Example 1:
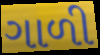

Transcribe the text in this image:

ગાળી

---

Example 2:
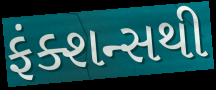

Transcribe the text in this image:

ફંક્શન્સથી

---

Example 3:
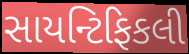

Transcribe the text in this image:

સાયન્ટિફિકલી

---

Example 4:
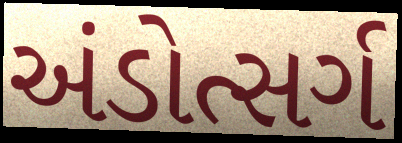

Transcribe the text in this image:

અંડોત્સર્ગ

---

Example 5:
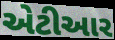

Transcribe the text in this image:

એટીઆર